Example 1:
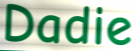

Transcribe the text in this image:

Dadie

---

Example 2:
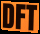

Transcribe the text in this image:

DFT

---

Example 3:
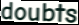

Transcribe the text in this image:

doubts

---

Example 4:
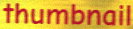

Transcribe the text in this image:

thumbnail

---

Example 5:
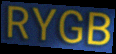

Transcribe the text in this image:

RYGB